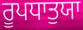
ਰੂਪਧਾਤੁਯਾ